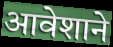
आवेशाने